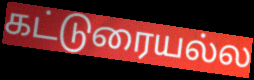
கட்டுரையல்ல